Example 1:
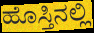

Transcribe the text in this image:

ಹೊಸ್ತಿನಲ್ಲಿ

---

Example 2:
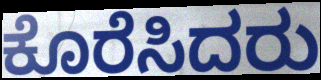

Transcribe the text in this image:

ಕೊರೆಸಿದರು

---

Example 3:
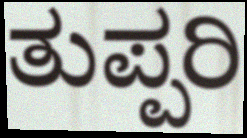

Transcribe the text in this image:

ತುಪ್ಪರಿ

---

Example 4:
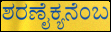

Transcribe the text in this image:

ಶರಣೈಕ್ಯನೆಂಬ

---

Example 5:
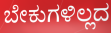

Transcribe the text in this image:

ಬೇಕುಗಳಿಲ್ಲದ